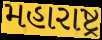
મહારાષ્ટ્ર